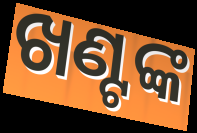
ଖଣ୍ଟଙ୍କ